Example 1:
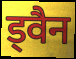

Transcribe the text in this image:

ड्वैन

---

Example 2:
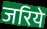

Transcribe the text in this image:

जरिये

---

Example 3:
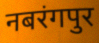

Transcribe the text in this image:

नबरंगपुर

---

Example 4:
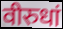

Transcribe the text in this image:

वीरुधां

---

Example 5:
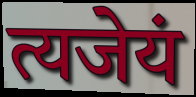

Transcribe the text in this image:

त्यजेयं